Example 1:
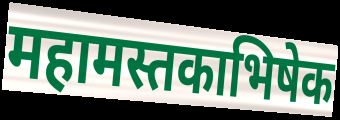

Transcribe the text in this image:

महामस्तकाभिषेक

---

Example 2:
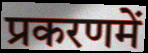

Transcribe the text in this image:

प्रकरणमें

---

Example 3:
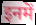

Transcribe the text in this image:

इनमें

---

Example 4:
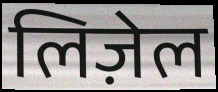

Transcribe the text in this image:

लिज़ेल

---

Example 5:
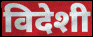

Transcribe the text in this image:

विदेशी